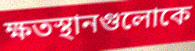
ক্ষতস্থানগুলোকে